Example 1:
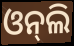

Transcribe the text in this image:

ଓନ୍‍ଲି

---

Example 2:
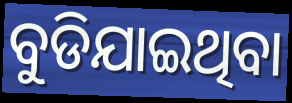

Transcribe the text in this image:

ବୁଡିଯାଇଥିବା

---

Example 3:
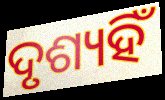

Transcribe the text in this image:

ଦୃଶ୍ୟହିଁ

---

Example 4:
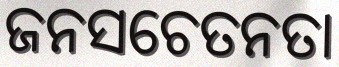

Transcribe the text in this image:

ଜନସଚେତନତା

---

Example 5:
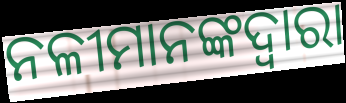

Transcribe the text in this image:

ନଳୀମାନଙ୍କଦ୍ୱାରା